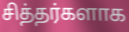
சித்தர்களாக